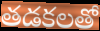
తడకలతో